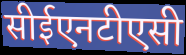
सीईएनटीएसी